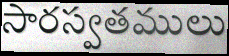
సారస్వతములు